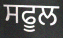
ਸਫੂਲ